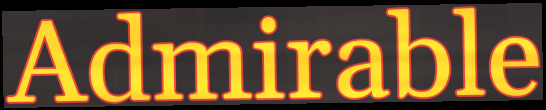
Admirable